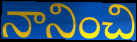
నానించి